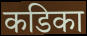
कडिका